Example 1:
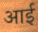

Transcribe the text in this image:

आई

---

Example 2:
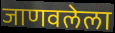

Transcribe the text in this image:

जाणवलेला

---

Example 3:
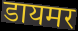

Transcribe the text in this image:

डायमर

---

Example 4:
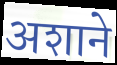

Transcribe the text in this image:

अशाने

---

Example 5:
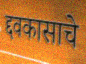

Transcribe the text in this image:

द्दवकासाचे